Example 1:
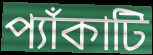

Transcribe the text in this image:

প্যাঁকাটি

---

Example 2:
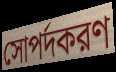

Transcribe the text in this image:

সোপর্দকরণ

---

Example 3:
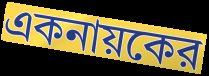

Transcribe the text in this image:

একনায়কের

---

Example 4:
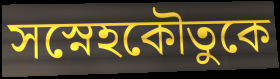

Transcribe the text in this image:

সস্নেহকৌতুকে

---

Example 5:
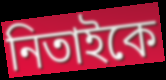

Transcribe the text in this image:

নিতাইকে